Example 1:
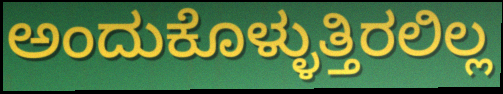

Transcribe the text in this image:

ಅಂದುಕೊಳ್ಳುತ್ತಿರಲಿಲ್ಲ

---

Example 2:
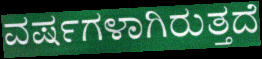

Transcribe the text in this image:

ವರ್ಷಗಳಾಗಿರುತ್ತದೆ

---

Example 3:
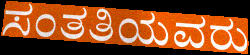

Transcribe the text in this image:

ಸಂತತಿಯವರು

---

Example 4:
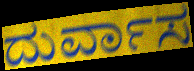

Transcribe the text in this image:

ದುರ್ವಾಸ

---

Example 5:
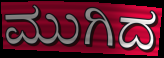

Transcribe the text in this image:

ಮುಗಿದ